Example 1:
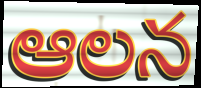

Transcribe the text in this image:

ఆలన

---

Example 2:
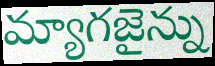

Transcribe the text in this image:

మ్యాగజైన్ను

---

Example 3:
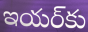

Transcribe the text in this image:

ఇయర్‌కు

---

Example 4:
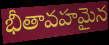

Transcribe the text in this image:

భీతావహమైన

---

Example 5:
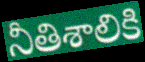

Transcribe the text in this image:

నీతిశాలికి